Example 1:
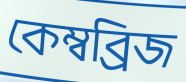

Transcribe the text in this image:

কেম্বব্ৰিজ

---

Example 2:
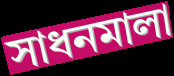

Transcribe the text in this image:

সাধনমালা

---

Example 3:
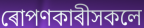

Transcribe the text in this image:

ৰোপণকাৰীসকলে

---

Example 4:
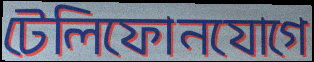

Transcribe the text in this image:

টেলিফোনযোগে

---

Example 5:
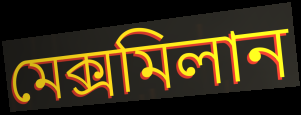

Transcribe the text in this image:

মেক্সমিলান